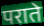
पराते